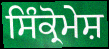
ਸਿੰਕ੍ਰੋਮੇਸ਼